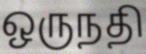
ஒருநதி